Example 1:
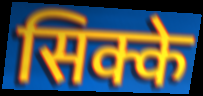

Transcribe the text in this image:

सिक्के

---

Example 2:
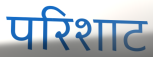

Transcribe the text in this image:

परिशाट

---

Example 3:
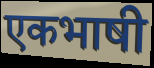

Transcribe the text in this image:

एकभाषी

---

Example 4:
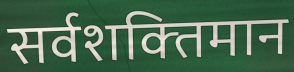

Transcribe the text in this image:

सर्वशक्‍तिमान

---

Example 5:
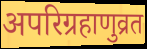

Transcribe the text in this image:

अपरिग्रहाणुव्रत